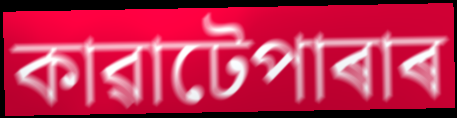
কাৱাটেপাৰাৰ